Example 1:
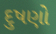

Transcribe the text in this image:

દુષણો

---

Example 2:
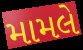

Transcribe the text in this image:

મામલે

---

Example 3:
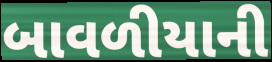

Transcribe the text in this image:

બાવળીયાની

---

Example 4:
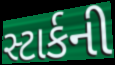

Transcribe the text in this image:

સ્ટાર્કની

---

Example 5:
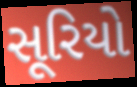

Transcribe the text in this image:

સૂરિયો